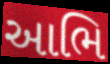
આભિ